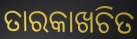
ତାରକାଖଚିତ